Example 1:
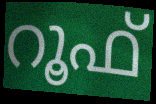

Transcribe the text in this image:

റൂഫ്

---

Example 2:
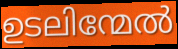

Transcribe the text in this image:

ഉടലിന്മേൽ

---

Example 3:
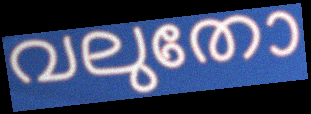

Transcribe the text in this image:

വലുതോ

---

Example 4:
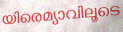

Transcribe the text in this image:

യിരെമ്യാവിലൂടെ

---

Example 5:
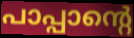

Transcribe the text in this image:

പാപ്പാന്റെ